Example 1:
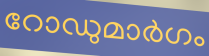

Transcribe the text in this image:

റോഡുമാർഗം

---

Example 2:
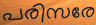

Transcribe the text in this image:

പരിസരേ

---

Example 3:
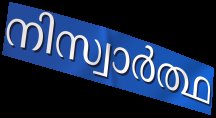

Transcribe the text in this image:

നിസ്വാർത്ഥ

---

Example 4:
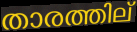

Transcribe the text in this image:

താരത്തില്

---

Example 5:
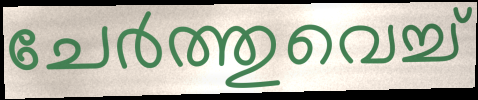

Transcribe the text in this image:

ചേർത്തുവെച്ച്